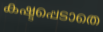
കഷ്ടപ്പെടാതെ